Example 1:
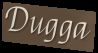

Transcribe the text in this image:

Dugga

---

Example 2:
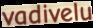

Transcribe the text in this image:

vadivelu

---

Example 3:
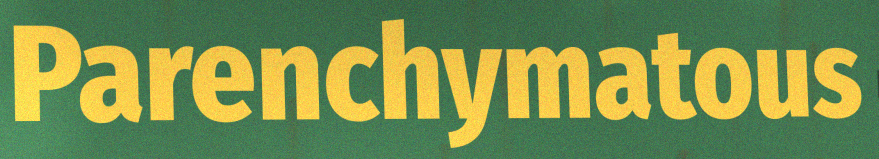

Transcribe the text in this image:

Parenchymatous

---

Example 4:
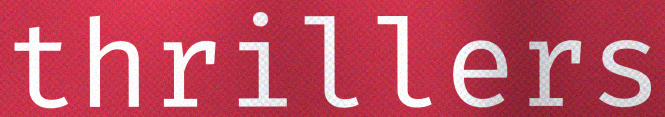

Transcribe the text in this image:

thrillers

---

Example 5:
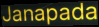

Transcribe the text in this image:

Janapada